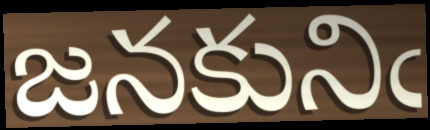
జనకునిఁ